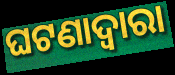
ଘଟଣାଦ୍ୱାରା